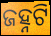
ଜହ୍ନଟି